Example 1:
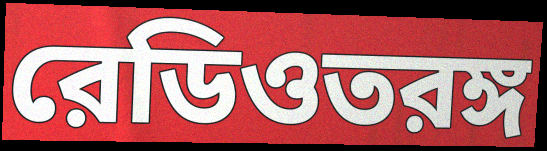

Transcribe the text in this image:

রেডিওতরঙ্গ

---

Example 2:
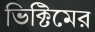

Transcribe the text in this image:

ভিক্টিমের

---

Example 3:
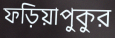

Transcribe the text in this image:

ফড়িয়াপুকুর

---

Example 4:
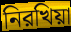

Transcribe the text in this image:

নিরখিয়া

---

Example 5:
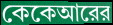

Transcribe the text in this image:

কেকেআরের